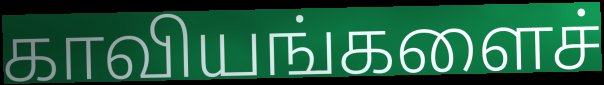
காவியங்களைச்